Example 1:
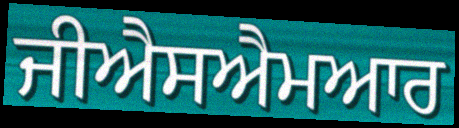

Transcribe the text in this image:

ਜੀਐਸਐਮਆਰ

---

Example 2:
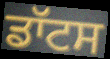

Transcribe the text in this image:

ਡਾੱਟਸ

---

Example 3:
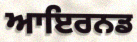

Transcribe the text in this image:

ਆਇਰਨਡ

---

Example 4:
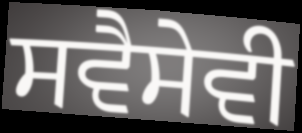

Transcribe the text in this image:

ਸਵੈਸੇਵੀ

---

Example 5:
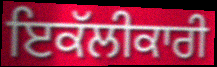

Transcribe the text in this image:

ਇਕੱਲੀਕਾਰੀ